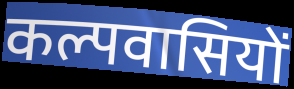
कल्पवासियों